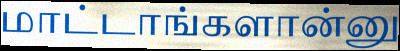
மாட்டாங்களான்னு